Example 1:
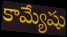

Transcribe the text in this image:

కామ్యేషు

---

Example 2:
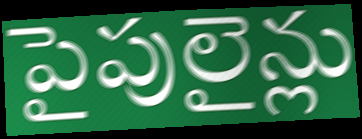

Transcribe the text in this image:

పైపులైన్లు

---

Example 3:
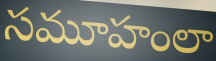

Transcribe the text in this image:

సమూహంలా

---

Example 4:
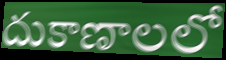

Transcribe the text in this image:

దుకాణాలలో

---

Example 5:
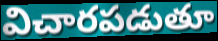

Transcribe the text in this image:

విచారపడుతూ